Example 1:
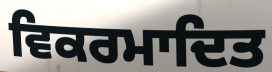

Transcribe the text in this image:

ਵਿਕਰਮਾਦਿਤ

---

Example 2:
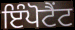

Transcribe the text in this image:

ਇੰਪੋਟੈਂਟ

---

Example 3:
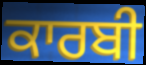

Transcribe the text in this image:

ਕਾਰਬੀ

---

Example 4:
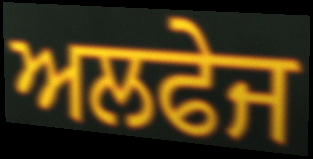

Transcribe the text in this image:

ਅਲਫੇਜ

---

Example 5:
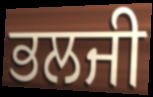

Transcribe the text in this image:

ਭਲਜੀ